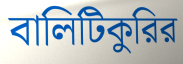
বালিটিকুরির